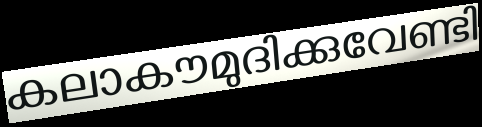
കലാകൗമുദിക്കുവേണ്ടി